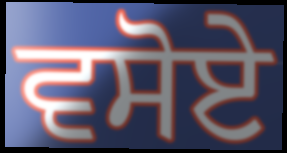
ਵਸੋਏ